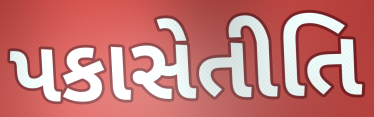
પકાસેતીતિ